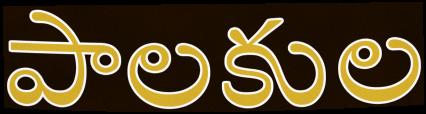
పాలకుల